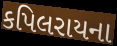
કપિલરાયના